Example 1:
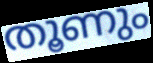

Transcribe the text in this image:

തൂണും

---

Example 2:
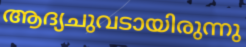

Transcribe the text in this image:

ആദ്യചുവടായിരുന്നു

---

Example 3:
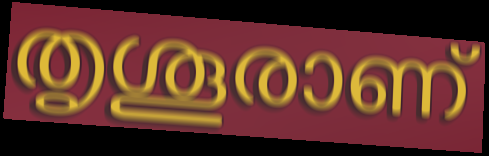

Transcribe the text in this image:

തൃശൂരാണ്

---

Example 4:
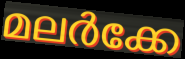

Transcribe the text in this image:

മലർക്കേ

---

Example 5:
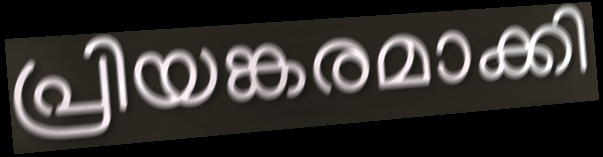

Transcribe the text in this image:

പ്രിയങ്കരമാക്കി